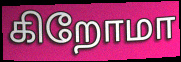
கிறோமா